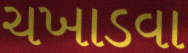
ચખાડવા